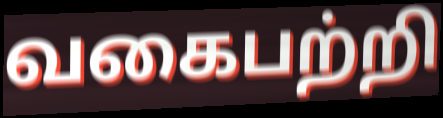
வகைபற்றி